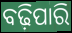
ବଢ଼ିପାରି